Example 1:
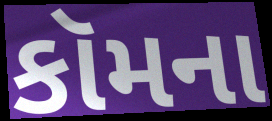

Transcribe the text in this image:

કૉમના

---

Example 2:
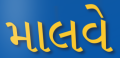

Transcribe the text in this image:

માલવે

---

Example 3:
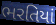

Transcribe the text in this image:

ભરતિયાં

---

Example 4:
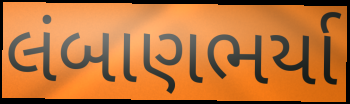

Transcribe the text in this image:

લંબાણભર્યા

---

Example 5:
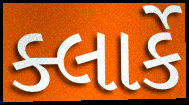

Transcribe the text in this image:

ક્લાર્કે